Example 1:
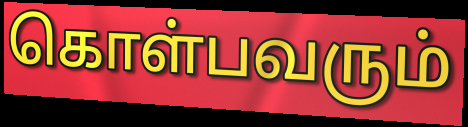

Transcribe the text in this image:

கொள்பவரும்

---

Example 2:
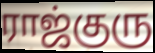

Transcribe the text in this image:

ராஜ்குரு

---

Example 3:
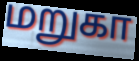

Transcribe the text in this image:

மறுகா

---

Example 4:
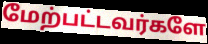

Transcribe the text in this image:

மேற்பட்டவர்களே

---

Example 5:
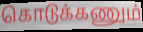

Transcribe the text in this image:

கொடுக்கணும்